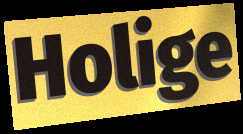
Holige